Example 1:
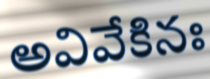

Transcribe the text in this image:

అవివేకినః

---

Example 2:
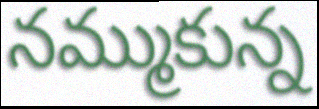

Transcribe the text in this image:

నమ్ముకున్న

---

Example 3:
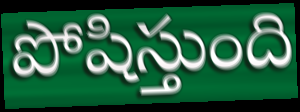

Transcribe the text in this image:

పోషిస్తుంది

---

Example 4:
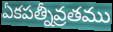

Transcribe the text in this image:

ఏకపత్నీవ్రతము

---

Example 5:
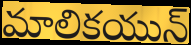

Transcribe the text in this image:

మాలికయున్